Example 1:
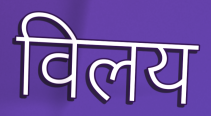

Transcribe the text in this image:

विलय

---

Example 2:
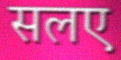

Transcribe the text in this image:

सलए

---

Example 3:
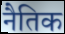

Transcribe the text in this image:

नैतिक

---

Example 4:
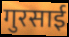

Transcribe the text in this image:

गुरसाई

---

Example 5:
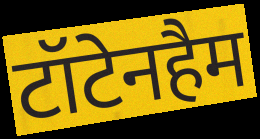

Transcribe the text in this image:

टॉटेनहैम